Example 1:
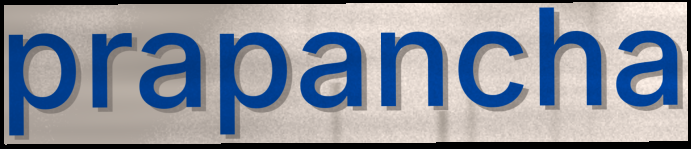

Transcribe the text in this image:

prapancha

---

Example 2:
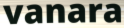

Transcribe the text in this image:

vanara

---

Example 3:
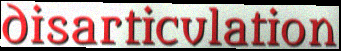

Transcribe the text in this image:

disarticulation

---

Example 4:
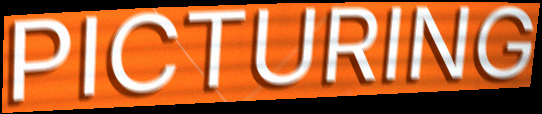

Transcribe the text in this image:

PICTURING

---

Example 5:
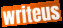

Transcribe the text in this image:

writeus